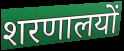
शरणालयों